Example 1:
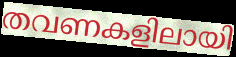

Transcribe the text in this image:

തവണകളിലായി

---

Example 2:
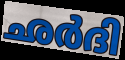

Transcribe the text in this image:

ഛർദി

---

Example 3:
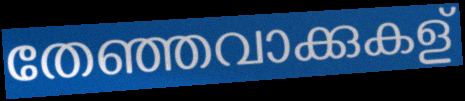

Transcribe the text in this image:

തേഞ്ഞവാക്കുകള്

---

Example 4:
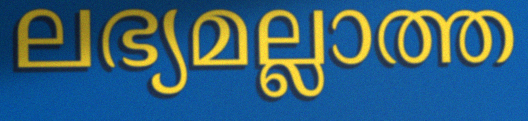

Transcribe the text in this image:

ലഭ്യമല്ലാത്ത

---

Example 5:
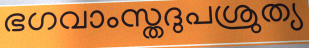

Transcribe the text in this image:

ഭഗവാംസ്തദുപശ്രുത്യ